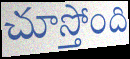
చూస్తోంది